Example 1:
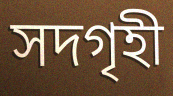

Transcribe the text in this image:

সদগৃহী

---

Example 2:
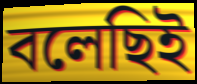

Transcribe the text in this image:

বলেছিই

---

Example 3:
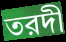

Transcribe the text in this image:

তরদী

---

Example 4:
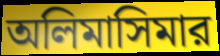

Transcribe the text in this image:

অলিমাসিমার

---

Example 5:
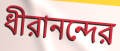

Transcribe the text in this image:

ধীরানন্দের